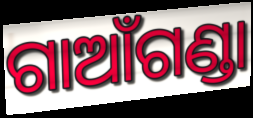
ଗାଆଁଗଣ୍ଡା